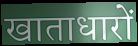
खाताधारों